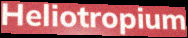
Heliotropium